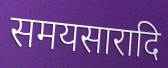
समयसारादि